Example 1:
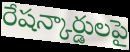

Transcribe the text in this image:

రేషన్కార్డులపై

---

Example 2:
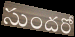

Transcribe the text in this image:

సుందరో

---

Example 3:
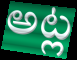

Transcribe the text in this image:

అట్ల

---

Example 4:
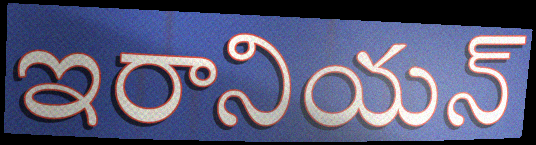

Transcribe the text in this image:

ఇరానియన్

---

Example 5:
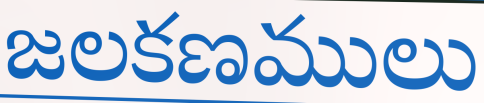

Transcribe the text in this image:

జలకణములు